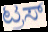
ಟ್ರಸ್